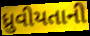
ધ્રુવીયતાની